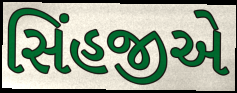
સિંહજીએ